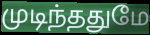
முடிந்ததுமே